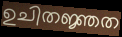
ഉചിതജ്ഞത